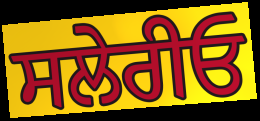
ਸਲੇਰੀਓ